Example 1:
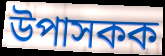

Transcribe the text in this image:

উপাসকক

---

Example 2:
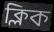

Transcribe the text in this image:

ক্লিক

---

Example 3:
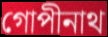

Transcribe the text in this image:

গোপীনাথ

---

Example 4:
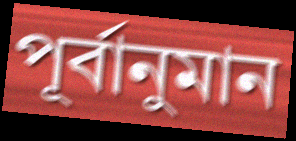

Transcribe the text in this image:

পূৰ্বানুমান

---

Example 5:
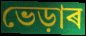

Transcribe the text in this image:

ভেড়াৰ